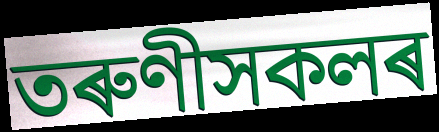
তৰুণীসকলৰ